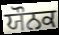
ਯੌਨਕ